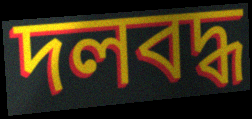
দলবদ্ধ